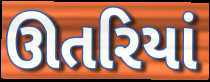
ઊતરિયાં